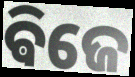
ଵିଜେ